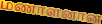
மணாளனான